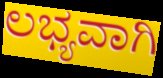
ಲಭ್ಯವಾಗಿ